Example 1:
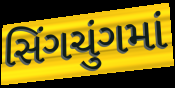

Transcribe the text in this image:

સિંગચુંગમાં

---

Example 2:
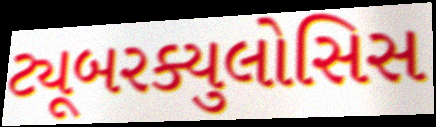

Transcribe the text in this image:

ટ્યૂબરક્યુલોસિસ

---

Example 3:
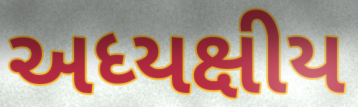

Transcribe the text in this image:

અધ્યક્ષીય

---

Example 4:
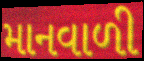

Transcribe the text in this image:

માનવાળી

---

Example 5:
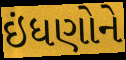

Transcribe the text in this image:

ઇંધણોને